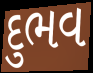
દુભવ